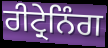
ਰੀਟ੍ਰੇਨਿੰਗ